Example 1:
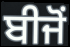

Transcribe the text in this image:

ਬੀਜੋਂ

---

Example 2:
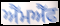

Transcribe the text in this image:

ਐੱਮਐੱਫ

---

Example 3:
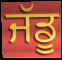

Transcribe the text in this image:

ਜੱਡੂ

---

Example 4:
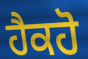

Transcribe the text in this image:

ਹੈਕਹੋ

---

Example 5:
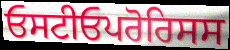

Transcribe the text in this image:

ਓਸਟੀਓਪਰੋਰਿਸਸ